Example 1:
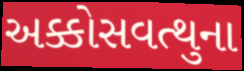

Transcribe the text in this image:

અક્કોસવત્થુના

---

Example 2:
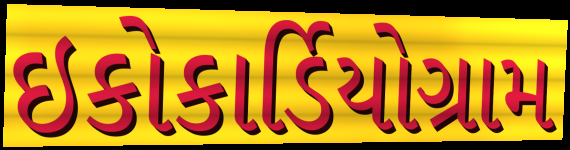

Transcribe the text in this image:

ઇકોકાર્ડિયોગ્રામ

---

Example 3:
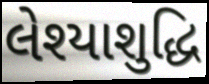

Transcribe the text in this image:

લેશ્યાશુદ્ધિ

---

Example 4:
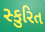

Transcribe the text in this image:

સ્કુરિત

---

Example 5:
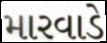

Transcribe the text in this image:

મારવાડે